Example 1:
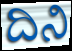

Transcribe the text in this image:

ದಿನಿ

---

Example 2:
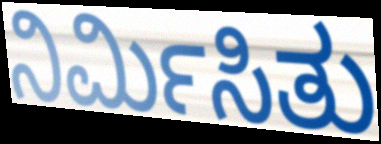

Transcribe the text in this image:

ನಿರ್ಮಿಸಿತು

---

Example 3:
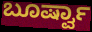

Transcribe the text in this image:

ಬೂರ್ಷ್ವಾ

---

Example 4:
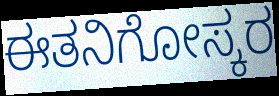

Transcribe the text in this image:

ಈತನಿಗೋಸ್ಕರ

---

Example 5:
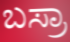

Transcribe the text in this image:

ಬಸ್ರಾ